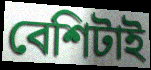
বেশিটাই